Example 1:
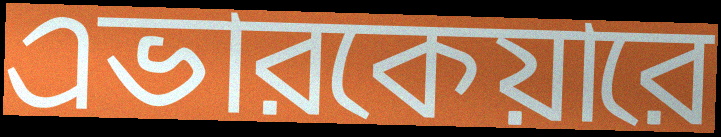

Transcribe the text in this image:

এভারকেয়ারে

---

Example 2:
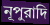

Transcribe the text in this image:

নূপুরাদি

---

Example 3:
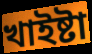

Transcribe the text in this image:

খাইষ্টা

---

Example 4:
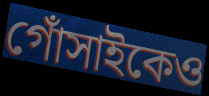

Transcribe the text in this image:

গোঁসাইকেও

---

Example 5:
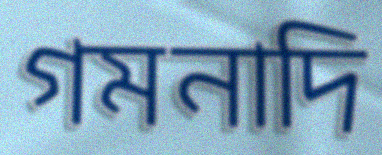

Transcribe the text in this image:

গমনাদি